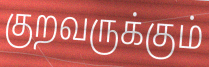
குறவருக்கும்